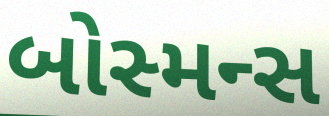
બોસ્મન્સ